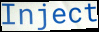
Inject